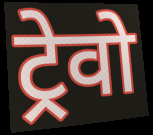
ट्रेवो